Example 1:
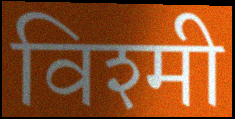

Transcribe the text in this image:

विश्मी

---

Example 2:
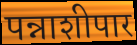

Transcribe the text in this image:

पन्नाशीपार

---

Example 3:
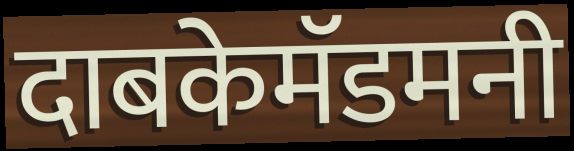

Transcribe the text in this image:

दाबकेमॅडमनी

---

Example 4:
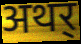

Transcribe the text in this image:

अथर्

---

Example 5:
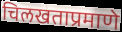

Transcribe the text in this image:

चिलखताप्रमाणे